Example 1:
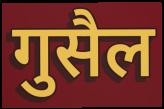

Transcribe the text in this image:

गुसैल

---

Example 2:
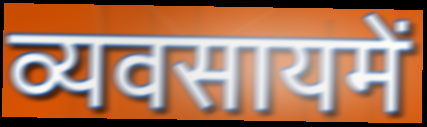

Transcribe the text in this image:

व्यवसायमें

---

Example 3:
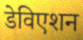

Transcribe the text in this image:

डेविएशन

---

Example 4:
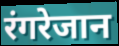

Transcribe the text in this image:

रंगरेजान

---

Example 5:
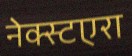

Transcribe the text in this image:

नेक्स्टएरा